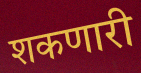
शकणारी